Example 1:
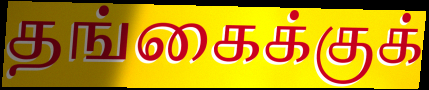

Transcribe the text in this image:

தங்கைக்குக்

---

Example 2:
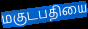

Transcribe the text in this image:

மகுடபதியை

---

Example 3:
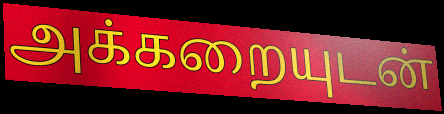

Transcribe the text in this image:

அக்கறையுடன்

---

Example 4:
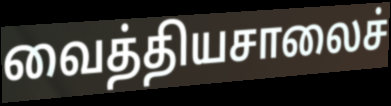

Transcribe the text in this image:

வைத்தியசாலைச்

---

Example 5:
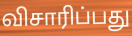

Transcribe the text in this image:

விசாரிப்பது